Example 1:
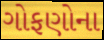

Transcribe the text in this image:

ગોફણોના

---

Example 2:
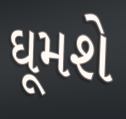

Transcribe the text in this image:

ઘૂમશે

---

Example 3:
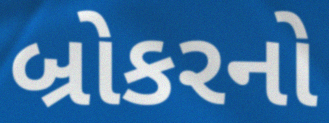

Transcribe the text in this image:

બ્રોકરનો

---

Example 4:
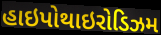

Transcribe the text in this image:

હાઇપોથાઇરોડિઝમ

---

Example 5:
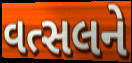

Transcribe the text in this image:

વત્સલને